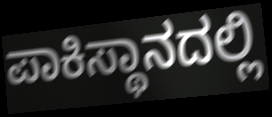
ಪಾಕಿಸ್ಥಾನದಲ್ಲಿ